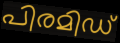
പിരമിഡ്